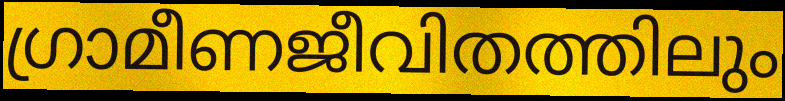
ഗ്രാമീണജീവിതത്തിലും